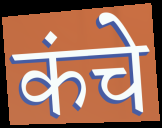
कंचे